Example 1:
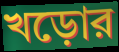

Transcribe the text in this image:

খড়োর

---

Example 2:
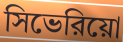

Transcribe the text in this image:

সিভেরিয়ো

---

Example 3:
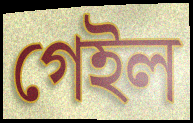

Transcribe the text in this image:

গেইল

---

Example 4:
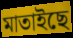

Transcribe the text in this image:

মাতাইছে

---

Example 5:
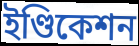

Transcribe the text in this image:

ইণ্ডিকেশন